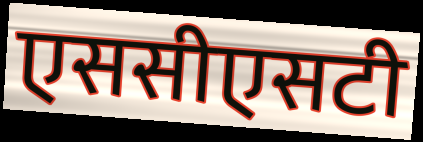
एससीएसटी